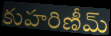
కుహరిణీమ్